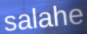
salahe